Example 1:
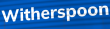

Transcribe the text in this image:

Witherspoon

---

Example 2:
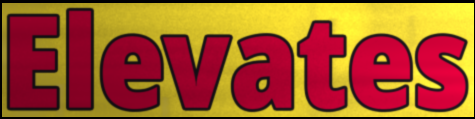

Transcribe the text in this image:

Elevates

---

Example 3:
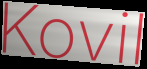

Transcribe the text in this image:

Kovil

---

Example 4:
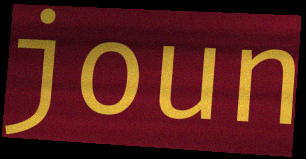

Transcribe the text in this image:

joun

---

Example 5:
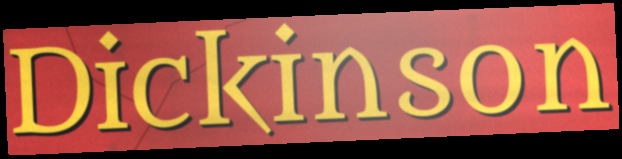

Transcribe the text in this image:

Dickinson